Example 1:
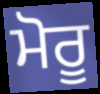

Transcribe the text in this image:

ਮੋਰੂ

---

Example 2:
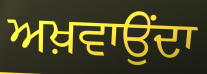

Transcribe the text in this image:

ਅਖ਼ਵਾਉਂਦਾ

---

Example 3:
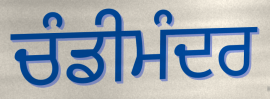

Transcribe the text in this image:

ਚੰਡੀਮੰਦਰ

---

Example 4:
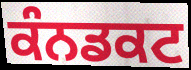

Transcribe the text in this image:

ਕੰਨਡਕਟ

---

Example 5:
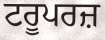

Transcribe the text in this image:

ਟਰੂਪਰਜ਼